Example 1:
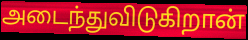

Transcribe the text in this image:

அடைந்துவிடுகிறான்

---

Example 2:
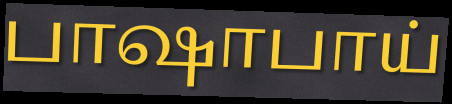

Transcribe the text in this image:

பாஷாபாய்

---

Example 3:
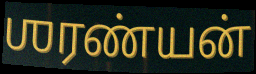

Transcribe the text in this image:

ஶரண்யன்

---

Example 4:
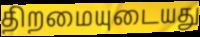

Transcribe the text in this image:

திறமையுடையது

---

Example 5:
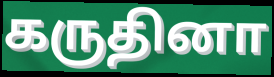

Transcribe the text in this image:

கருதினா